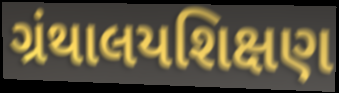
ગ્રંથાલયશિક્ષણ